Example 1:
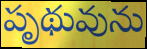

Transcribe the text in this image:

పృథువును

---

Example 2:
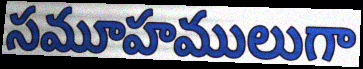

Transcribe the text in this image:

సమూహములుగా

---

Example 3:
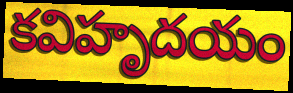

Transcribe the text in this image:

కవిహృదయం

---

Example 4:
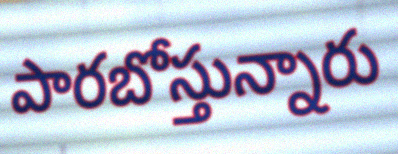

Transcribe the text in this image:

పారబోస్తున్నారు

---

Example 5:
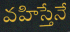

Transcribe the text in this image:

వహిస్తేనే